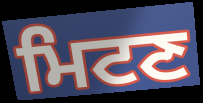
ਮਿਟਣ